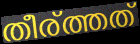
തീര്ത്തത്